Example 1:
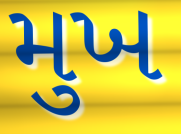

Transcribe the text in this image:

મુખ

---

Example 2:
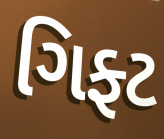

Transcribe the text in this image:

ગિફ્ટ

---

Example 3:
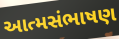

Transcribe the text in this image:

આત્મસંભાષણ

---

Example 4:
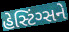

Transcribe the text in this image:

હેસ્ટિંગ્સને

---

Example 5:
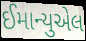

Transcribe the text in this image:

ઈમાન્યુએલ